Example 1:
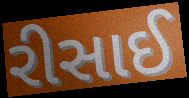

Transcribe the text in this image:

રીસાઈ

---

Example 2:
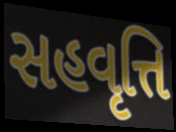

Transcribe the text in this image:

સહવૃત્તિ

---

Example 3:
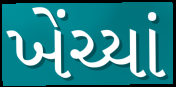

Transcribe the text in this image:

ખેંચ્યાં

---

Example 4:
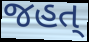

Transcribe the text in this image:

જહત્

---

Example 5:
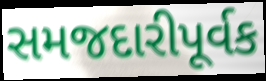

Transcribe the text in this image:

સમજદારીપૂર્વક